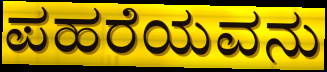
ಪಹರೆಯವನು